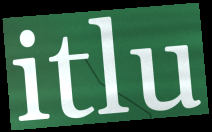
itlu